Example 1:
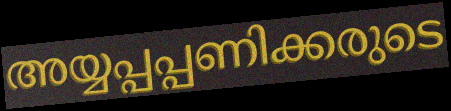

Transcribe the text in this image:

അയ്യപ്പപ്പണിക്കരുടെ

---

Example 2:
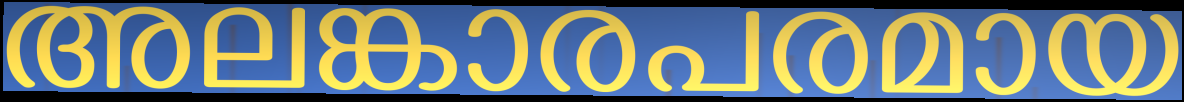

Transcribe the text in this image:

അലങ്കാരപരമായ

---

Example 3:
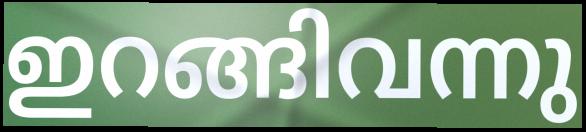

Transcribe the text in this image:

ഇറങ്ങിവന്നു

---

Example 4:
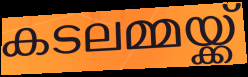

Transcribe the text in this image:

കടലമ്മയ്ക്ക്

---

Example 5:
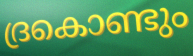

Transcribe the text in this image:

ദ്രകൊണ്ടും